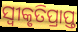
ସ୍ବୀକୃତିପ୍ରାପ୍ତ